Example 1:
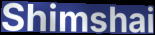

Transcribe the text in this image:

Shimshai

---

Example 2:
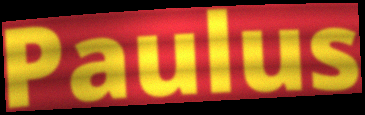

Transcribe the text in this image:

Paulus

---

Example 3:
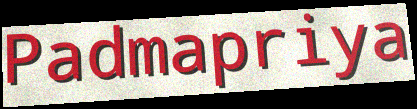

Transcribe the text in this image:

Padmapriya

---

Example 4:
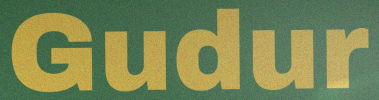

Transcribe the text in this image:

Gudur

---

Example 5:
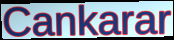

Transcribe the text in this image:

Cankarar